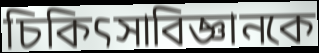
চিকিৎসাবিজ্ঞানকে